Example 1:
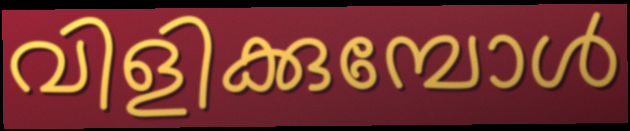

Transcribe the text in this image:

വിളിക്കുമ്പോൾ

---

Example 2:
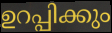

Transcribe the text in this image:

ഉറപ്പിക്കും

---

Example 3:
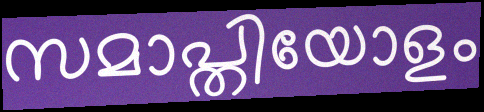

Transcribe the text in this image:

സമാപ്തിയോളം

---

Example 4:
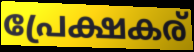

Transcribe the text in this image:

പ്രേക്ഷകര്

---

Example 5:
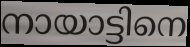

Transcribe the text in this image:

നായാട്ടിനെ